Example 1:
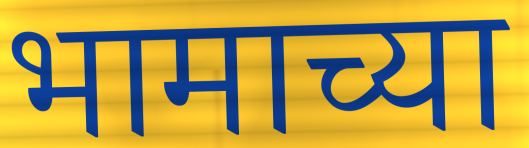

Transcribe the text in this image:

भामाच्या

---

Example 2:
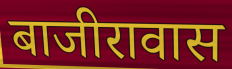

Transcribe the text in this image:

बाजीरावास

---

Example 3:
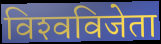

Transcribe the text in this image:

विश्वविजेता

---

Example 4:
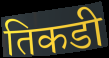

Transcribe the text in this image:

तिकडी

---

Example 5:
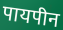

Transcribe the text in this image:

पायपीन